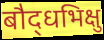
बौद्धभिक्षु